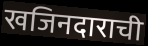
खजिनदाराची